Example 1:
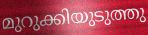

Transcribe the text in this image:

മുറുക്കിയുടുത്തു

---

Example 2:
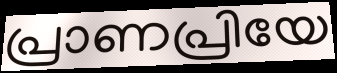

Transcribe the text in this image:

പ്രാണപ്രിയേ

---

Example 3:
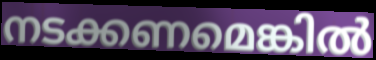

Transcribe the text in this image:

നടക്കണമെങ്കിൽ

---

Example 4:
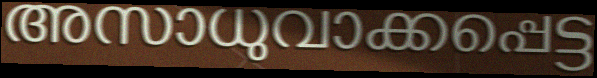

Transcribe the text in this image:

അസാധുവാക്കപ്പെട്ട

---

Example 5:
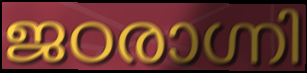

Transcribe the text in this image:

ജഠരാഗ്നി